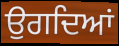
ਉਗਦਿਆਂ